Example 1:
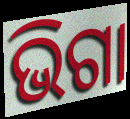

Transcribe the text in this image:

ଭିଗା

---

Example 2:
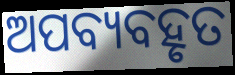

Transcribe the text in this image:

ଅପବ୍ୟବହୃତ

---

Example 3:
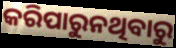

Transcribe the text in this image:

କରିପାରୁନଥିବାରୁ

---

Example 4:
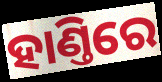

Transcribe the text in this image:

ହାଣ୍ତିରେ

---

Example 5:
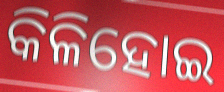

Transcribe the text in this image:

କିଳିହୋଇ